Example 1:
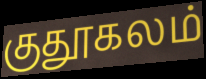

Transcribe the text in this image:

குதூகலம்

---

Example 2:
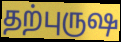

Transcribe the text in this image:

தற்புருஷ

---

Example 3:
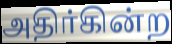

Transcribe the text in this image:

அதிர்கின்ற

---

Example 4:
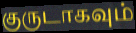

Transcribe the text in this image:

குருடாகவும்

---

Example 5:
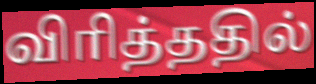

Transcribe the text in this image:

விரித்ததில்